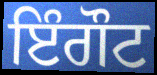
ਇੰਗੌਟ